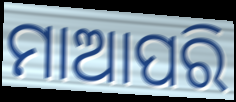
ମାଆପରି